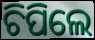
ଚିପିଲେ